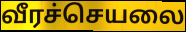
வீரச்செயலை